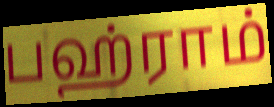
பஹ்ராம்